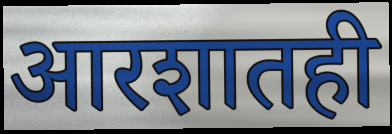
आरशातही